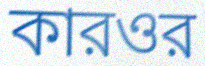
কারওর